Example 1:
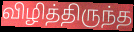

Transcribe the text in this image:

விழித்திருந்த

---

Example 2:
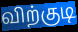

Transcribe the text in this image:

விற்குடி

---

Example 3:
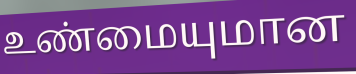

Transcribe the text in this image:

உண்மையுமான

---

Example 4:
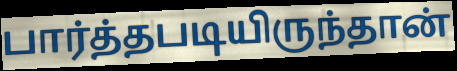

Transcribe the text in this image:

பார்த்தபடியிருந்தான்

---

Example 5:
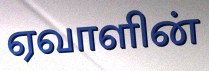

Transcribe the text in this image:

ஏவாளின்